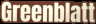
Greenblatt